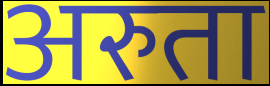
अरुता